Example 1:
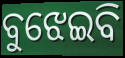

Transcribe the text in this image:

ବୁଝେଇବି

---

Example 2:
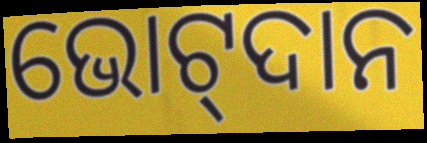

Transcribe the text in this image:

ଭୋଟ୍‌ଦାନ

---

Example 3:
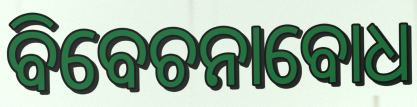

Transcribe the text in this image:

ବିବେଚନାବୋଧ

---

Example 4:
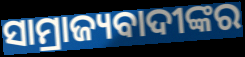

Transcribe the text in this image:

ସାମ୍ରାଜ୍ୟବାଦୀଙ୍କର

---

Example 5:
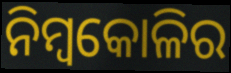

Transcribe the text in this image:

ନିମ୍ବକୋଳିର